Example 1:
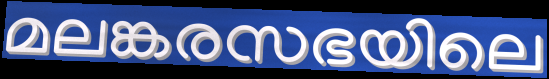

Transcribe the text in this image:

മലങ്കരസഭയിലെ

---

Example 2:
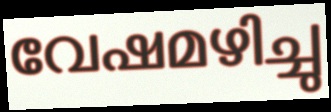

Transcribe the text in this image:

വേഷമഴിച്ചു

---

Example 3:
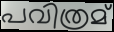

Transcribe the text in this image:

പവിത്രമ്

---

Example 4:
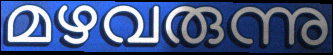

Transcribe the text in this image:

മഴവരുന്നു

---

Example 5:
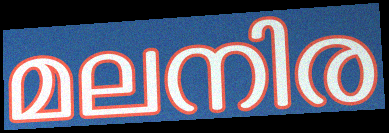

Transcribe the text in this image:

മലനിര